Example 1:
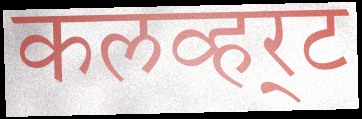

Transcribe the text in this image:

कलव्हर्ट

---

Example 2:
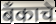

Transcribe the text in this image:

बँकाचे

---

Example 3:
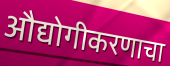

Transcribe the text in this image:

औद्योगीकरणाचा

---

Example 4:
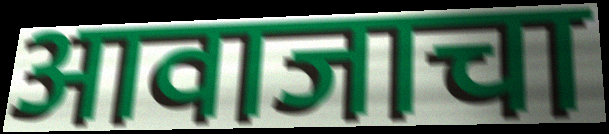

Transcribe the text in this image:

आवाजाचा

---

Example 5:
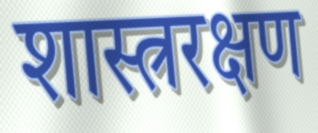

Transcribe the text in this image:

शास्त्ररक्षण